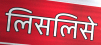
लिसलिसे